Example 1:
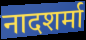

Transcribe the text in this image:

नादशर्मा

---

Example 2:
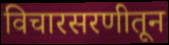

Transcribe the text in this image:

विचारसरणीतून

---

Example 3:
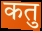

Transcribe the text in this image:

कतु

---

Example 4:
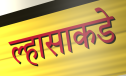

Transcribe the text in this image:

ल्हासाकडे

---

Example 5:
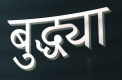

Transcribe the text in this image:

बुद्ध्या